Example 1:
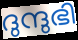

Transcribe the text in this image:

ദുന്ദുഭി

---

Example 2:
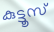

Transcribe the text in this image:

കുട്ടൂസ്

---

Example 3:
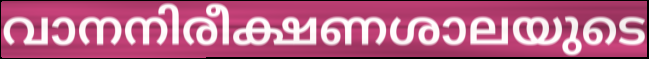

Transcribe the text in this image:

വാനനിരീക്ഷണശാലയുടെ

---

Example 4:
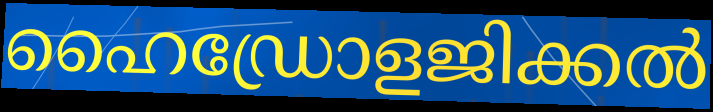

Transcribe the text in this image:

ഹൈഡ്രോളജിക്കൽ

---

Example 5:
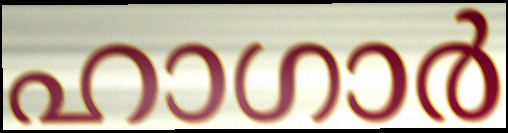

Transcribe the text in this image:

ഹാഗാർ